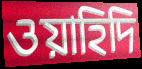
ওয়াহিদি